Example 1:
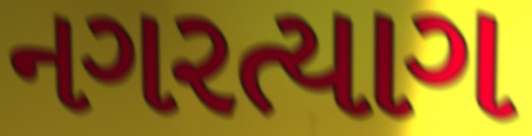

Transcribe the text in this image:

નગરત્યાગ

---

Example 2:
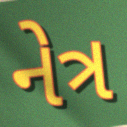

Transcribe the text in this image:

નેત્ર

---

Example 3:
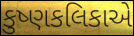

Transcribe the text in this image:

કુષ્ણકલિકાએ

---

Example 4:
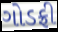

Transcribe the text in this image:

ગોડફ્રી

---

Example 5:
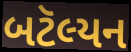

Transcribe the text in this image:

બટૅલ્યન